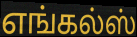
எங்கல்ஸ்